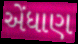
એંધાણ